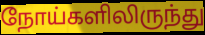
நோய்களிலிருந்து